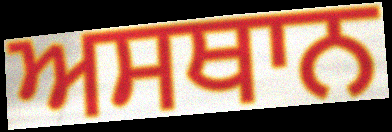
ਅਸਥਾਨ